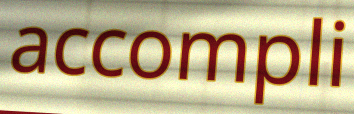
accompli